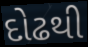
દોઢથી